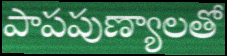
పాపపుణ్యాలతో